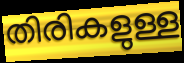
തിരികളുള്ള